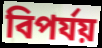
বিপর্যয়